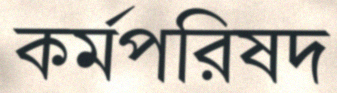
কর্মপরিষদ